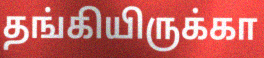
தங்கியிருக்கா